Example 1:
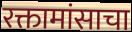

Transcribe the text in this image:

रक्तामांसाचा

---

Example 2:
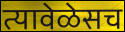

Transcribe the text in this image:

त्यावेळेसच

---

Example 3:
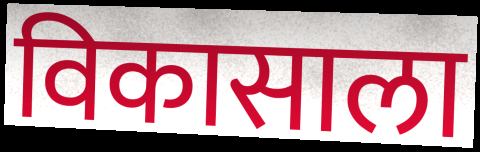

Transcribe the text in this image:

विकासाला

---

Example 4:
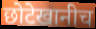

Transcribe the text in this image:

छोटेखानीच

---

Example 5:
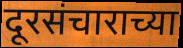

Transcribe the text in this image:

दूरसंचाराच्या